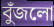
বুঁজলো